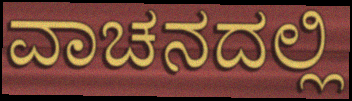
ವಾಚನದಲ್ಲಿ